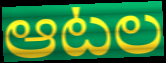
ఆటల